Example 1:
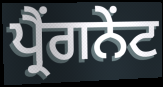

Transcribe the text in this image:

ਪ੍ਰੈਂਗਨੇਂਟ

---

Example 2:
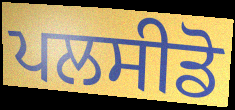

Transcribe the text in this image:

ਪਲਸੀਡੋ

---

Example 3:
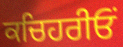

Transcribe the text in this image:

ਕਚਿਹਰੀਓਂ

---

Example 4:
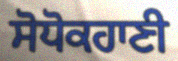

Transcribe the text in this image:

ਸੋਧੋਕਹਾਣੀ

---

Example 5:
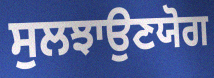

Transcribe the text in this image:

ਸੁਲਝਾਉਣਯੋਗ